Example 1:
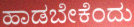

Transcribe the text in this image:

ಹಾಡಬೇಕೆಂದು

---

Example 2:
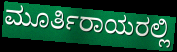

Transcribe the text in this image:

ಮೂರ್ತಿರಾಯರಲ್ಲಿ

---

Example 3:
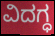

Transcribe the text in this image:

ವಿದಗ್ಧ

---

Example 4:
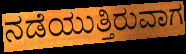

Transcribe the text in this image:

ನಡೆಯುತ್ತಿರುವಾಗ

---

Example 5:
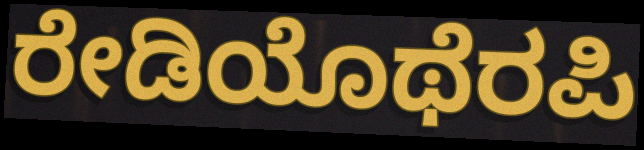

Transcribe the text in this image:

ರೇಡಿಯೊಥೆರಪಿ